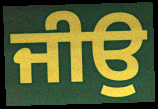
ਜੀਉ